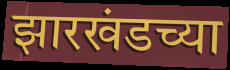
झारखंडच्या